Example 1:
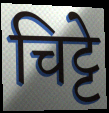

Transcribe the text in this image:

चिट्टे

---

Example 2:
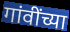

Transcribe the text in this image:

गांवींच्या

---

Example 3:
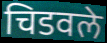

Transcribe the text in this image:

चिडवले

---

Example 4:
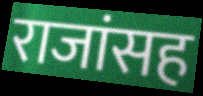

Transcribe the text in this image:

राजांसह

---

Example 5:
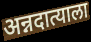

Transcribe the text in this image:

अन्नदात्याला